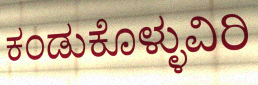
ಕಂಡುಕೊಳ್ಳುವಿರಿ